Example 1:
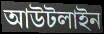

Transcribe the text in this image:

আউটলাইন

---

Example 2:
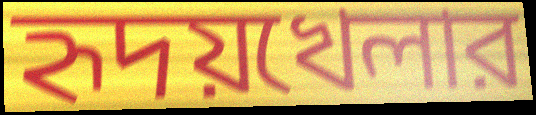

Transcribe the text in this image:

হৃদয়খেলার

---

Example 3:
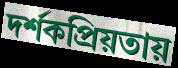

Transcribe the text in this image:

দর্শকপ্রিয়তায়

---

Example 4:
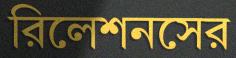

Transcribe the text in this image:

রিলেশনসের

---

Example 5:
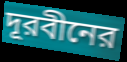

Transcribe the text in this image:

দূরবীনের